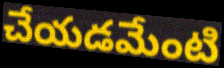
చేయడమేంటి